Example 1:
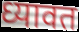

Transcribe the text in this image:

ध्यावत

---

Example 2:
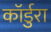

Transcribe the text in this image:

कॉर्डुरा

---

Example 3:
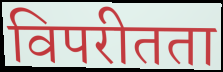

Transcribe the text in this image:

विपरीतता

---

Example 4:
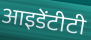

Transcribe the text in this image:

आइडेंटीटी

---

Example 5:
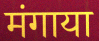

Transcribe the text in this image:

मंगाया